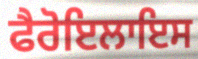
ਫੈਰੋਇਲਾਇਸ